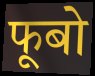
फूबो